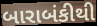
બારાબંકીથી